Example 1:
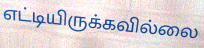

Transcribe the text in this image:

எட்டியிருக்கவில்லை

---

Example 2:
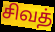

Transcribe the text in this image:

சிவத்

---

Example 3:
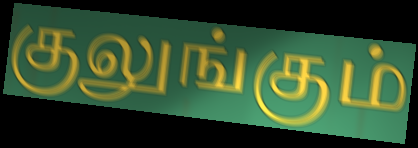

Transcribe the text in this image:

குலுங்கும்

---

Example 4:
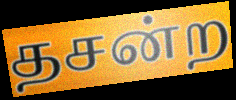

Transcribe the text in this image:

தசன்ற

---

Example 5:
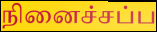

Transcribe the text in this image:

நினைச்சப்ப